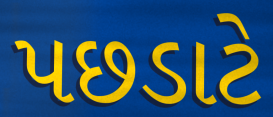
પછડાટે